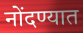
नोंदण्यात